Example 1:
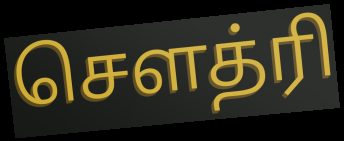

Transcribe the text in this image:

சௌத்ரி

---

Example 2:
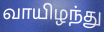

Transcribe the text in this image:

வாயிழந்து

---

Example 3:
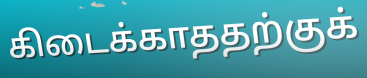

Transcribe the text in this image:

கிடைக்காததற்குக்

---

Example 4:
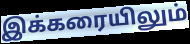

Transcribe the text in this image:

இக்கரையிலும்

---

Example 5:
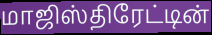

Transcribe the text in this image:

மாஜிஸ்திரேட்டின்